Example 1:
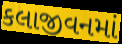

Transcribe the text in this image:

કલાજીવનમાં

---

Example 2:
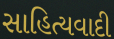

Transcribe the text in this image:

સાહિત્યવાદી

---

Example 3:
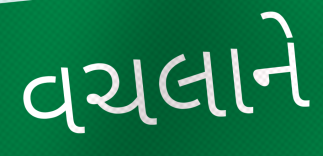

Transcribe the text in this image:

વચલાને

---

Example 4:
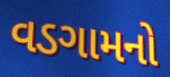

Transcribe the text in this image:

વડગામનો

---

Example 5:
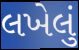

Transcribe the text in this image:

લખેલું